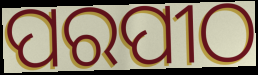
ପରପୀଠ